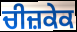
ਚੀਜ਼ਕੇਕ